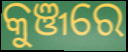
କୁଞ୍ଜରେ